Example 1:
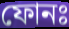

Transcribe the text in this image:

ফোনঃ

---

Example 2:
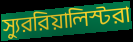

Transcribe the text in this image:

স্যুররিয়ালিস্টরা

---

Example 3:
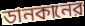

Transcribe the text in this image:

ডানকানের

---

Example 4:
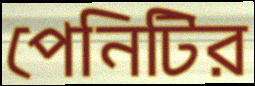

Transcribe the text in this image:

পেনিটির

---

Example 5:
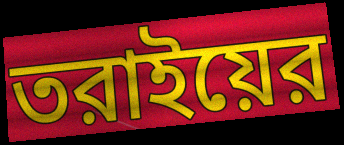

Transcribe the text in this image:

তরাইয়ের